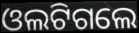
ଓଲଟିଗଲେ